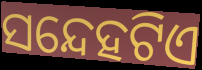
ସନ୍ଦେହଟିଏ